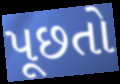
પૂછતો